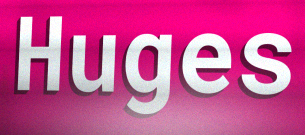
Huges